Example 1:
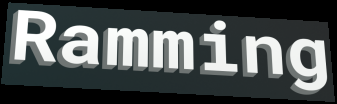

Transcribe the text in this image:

Ramming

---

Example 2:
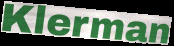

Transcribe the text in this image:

Klerman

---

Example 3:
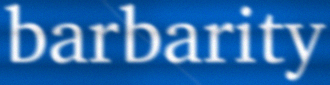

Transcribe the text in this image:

barbarity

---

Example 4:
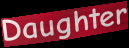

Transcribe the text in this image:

Daughter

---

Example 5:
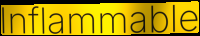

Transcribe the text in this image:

Inflammable